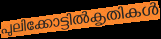
പുലിക്കോട്ടിൽകൃതികൾ